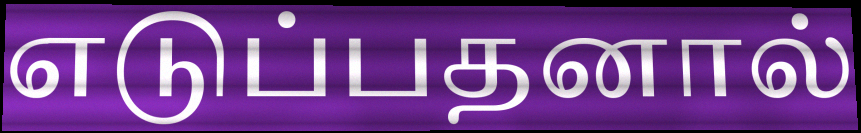
எடுப்பதனால்